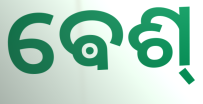
ଵେଶ୍